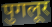
पुगलूर